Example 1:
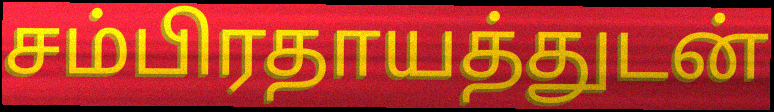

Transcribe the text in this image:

சம்பிரதாயத்துடன்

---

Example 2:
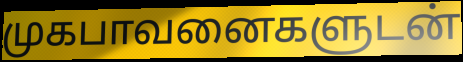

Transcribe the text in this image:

முகபாவனைகளுடன்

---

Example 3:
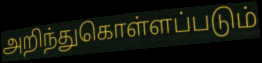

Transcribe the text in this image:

அறிந்துகொள்ளப்படும்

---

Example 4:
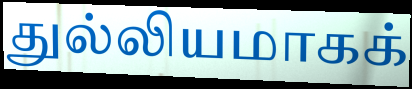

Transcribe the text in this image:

துல்லியமாகக்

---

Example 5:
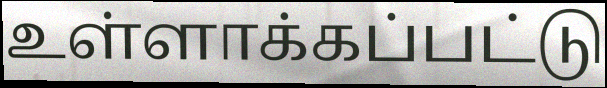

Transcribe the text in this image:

உள்ளாக்கப்பட்டு